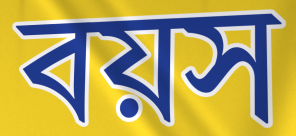
বয়স